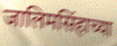
जालिमसिंहाच्या